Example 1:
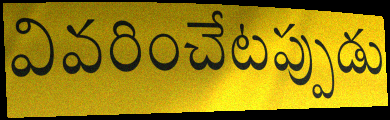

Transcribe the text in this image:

వివరించేటప్పుడు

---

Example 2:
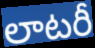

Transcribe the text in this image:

లాటరీ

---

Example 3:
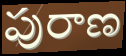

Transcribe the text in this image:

పురాణ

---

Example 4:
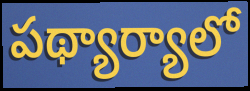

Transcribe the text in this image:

పథ్యార్యాలో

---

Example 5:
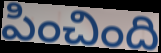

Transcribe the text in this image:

పించింది